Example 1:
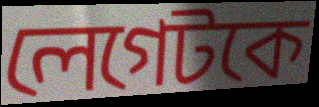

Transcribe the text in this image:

লেগেটকে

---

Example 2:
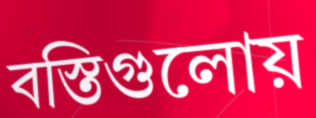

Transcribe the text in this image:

বস্তিগুলোয়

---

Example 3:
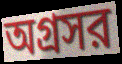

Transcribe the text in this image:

অগ্রসর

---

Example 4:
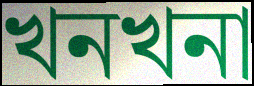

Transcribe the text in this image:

খনখনা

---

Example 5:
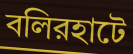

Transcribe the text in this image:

বলিরহাটে